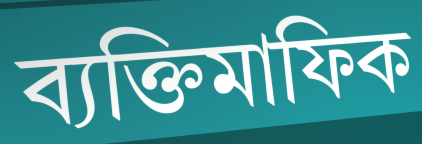
ব্যক্তিমাফিক